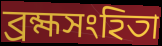
ব্রহ্মসংহিতা